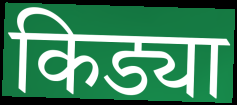
किड्या